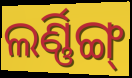
ଲର୍ଣ୍ଣିଙ୍ଗ୍